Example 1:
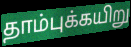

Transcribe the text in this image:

தாம்புக்கயிறு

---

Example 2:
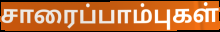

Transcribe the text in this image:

சாரைப்பாம்புகள்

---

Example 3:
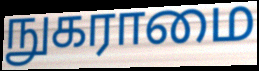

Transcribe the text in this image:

நுகராமை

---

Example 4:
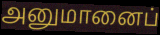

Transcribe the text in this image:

அனுமானைப்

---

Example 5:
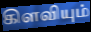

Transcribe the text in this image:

கிளவியும்